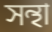
সন্থা